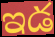
ఇడ